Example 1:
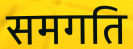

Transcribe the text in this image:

समगति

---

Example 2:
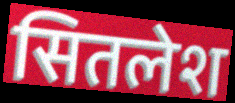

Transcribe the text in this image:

सितलेश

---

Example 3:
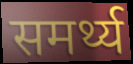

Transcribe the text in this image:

समर्थ्य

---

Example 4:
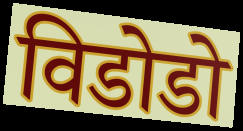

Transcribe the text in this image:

विडोडो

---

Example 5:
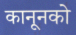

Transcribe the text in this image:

कानूनको